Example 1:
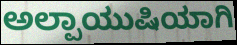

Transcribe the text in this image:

ಅಲ್ಪಾಯುಷಿಯಾಗಿ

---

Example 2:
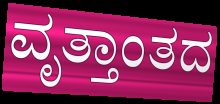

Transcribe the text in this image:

ವೃತ್ತಾಂತದ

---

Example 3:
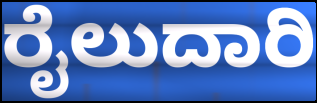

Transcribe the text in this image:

ರೈಲುದಾರಿ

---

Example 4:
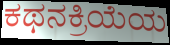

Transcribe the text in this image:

ಕಥನಕ್ರಿಯೆಯ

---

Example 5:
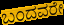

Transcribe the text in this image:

ಬಂದವರೇ